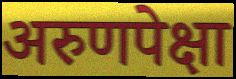
अरुणपेक्षा